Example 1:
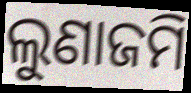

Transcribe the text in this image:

ଲୁଣାଜମି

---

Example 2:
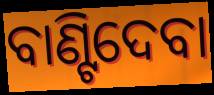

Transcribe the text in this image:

ବାଣ୍ଟିଦେବା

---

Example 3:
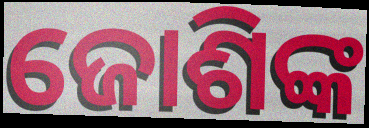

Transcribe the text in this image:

ଜୋଶିଙ୍କ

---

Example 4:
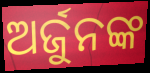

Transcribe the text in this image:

ଅର୍ଜୁନଙ୍କ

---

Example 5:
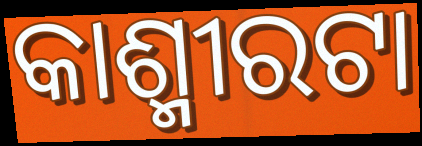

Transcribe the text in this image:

କାଶ୍ମୀରଟା